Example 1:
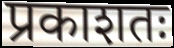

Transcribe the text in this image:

प्रकाशतः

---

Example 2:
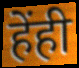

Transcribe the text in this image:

हेंही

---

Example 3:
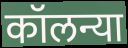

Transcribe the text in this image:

कॉलन्या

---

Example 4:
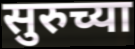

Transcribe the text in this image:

सुरुच्या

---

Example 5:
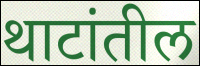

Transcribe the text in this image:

थाटांतील